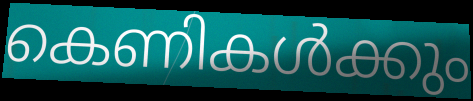
കെണികൾക്കും